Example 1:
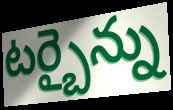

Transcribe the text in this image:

టర్బైన్ను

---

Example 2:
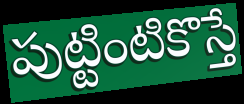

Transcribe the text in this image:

పుట్టింటికొస్తే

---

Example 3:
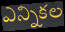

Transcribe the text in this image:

ఎన్నికల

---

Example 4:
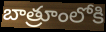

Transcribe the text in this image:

బాత్రూంలోకి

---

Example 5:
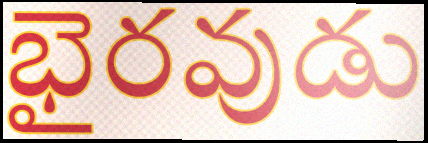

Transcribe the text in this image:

భైరవుడు